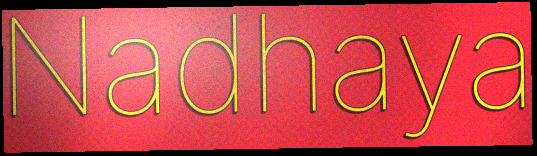
Nadhaya